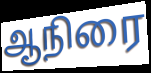
ஆநிரை